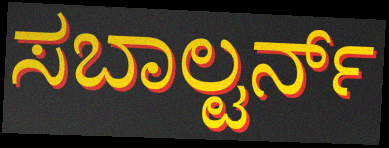
ಸಬಾಲ್ಟರ್ನ್